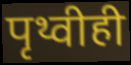
पृथ्वीही